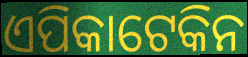
ଏପିକାଟେକିନ